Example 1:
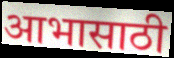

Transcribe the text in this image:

आभासाठी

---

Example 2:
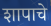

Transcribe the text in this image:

शापाचे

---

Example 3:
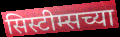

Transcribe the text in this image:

सिस्टीम्सच्या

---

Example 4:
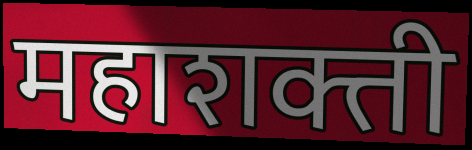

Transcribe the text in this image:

महाशक्ती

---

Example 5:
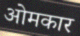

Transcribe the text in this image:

ओमकार